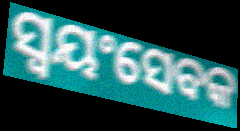
ସ୍ୱୟଂସେବକ